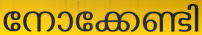
നോക്കേണ്ടി